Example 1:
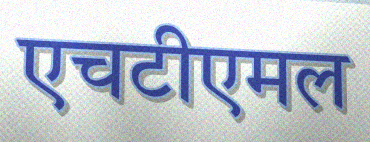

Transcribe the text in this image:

एचटीएमल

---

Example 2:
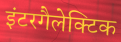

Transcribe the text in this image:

इंटरगैलेक्टिक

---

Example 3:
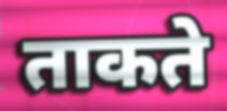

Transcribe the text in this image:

ताकते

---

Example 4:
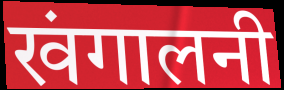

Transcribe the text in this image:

खंगालनी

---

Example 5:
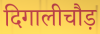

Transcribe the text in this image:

दिगालीचौड़